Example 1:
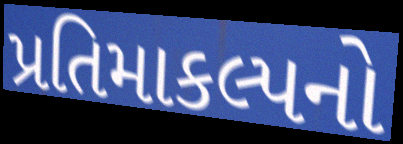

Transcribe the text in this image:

પ્રતિમાકલ્પનો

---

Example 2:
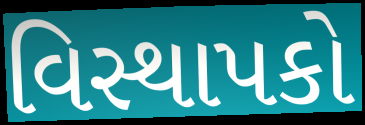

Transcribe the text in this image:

વિસ્થાપકો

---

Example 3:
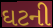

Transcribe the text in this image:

ઘટની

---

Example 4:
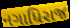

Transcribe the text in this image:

નગાધિરાજ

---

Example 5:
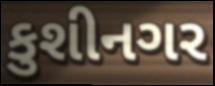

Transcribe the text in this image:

કુશીનગર